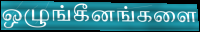
ஒழுங்கீனங்களை